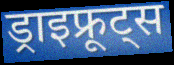
ड्राइफ्रूट्स